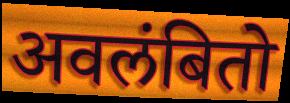
अवलंबितो